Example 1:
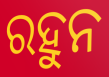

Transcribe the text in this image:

ରହୁନ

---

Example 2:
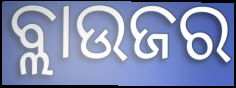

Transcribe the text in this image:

ବ୍ଲାଉଜର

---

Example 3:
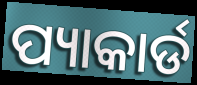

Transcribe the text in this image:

ପ୍ୟାକାର୍ଡ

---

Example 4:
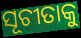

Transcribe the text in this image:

ସୂଚୀତାକୁ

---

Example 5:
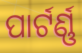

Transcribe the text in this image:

ପାର୍ଟର୍ଣ୍ଣ